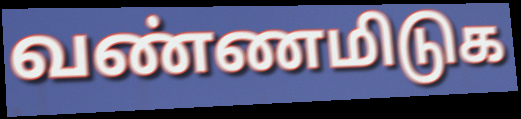
வண்ணமிடுக